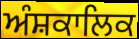
ਅੰਸ਼ਕਾਲਿਕ